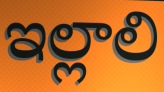
ఇల్లాలి